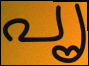
പൄ